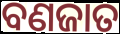
ବଣଜାତ